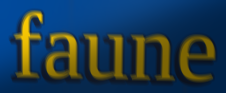
faune